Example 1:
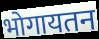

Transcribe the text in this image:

भोगायतन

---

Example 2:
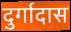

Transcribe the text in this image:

दुर्गादास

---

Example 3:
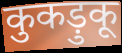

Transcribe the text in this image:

कुकड़ुकू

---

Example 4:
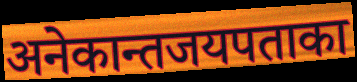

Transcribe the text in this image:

अनेकान्तजयपताका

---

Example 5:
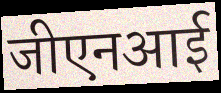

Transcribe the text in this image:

जीएनआई